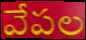
వేపల